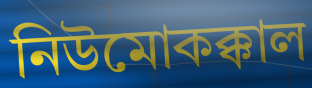
নিউমোকক্কাল